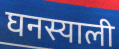
घनस्याली